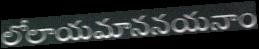
లోలాయమాననయనాం